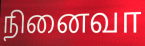
நினைவா